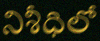
నిశీధిలో